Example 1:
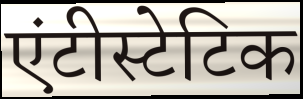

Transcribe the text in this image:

एंटीस्टेटिक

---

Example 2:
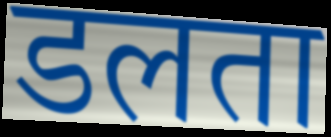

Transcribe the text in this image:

डलता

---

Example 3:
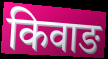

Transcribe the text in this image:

किवाङ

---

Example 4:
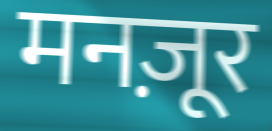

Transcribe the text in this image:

मनज़ूर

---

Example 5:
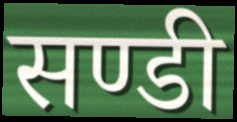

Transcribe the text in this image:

सण्डी